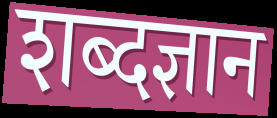
शब्दज्ञान